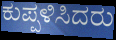
ಕುಪ್ಪಳಿಸಿದರು